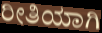
ರೀತಿಯಾಗಿ